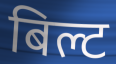
बिल्‍ट